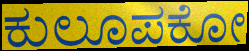
ಕುಲೂಪಕೋ